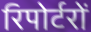
रिपोर्टरों